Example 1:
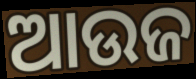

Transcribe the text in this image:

ଆଉଜ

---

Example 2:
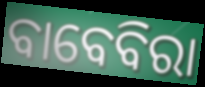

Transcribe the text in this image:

ବାବେବିରା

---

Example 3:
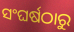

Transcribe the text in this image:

ସଂଘର୍ଷଠାରୁ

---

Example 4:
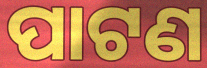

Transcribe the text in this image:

ପାଟଣ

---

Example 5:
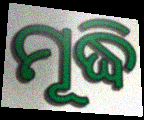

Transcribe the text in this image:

ମୂଦ୍ଧି